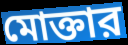
মোক্তার